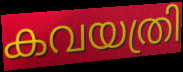
കവയത്രി